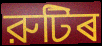
ৰুটিৰ